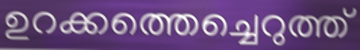
ഉറക്കത്തെച്ചെറുത്ത്